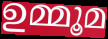
ഉമ്മൂമ